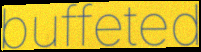
buffeted